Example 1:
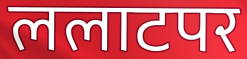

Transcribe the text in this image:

ललाटपर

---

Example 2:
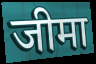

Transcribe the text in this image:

जीमा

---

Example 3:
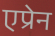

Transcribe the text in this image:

एप्रेन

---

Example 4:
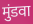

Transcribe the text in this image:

मुंडवा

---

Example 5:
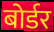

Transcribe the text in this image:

बोर्डर